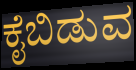
ಕೈಬಿಡುವ